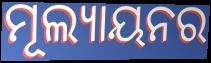
ମୂଲ୍ୟାୟନର